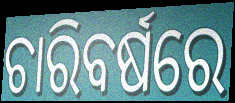
ଚାରିବର୍ଷରେ